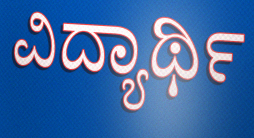
ವಿದ್ಯಾರ್ಥಿ